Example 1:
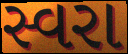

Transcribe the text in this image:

સ્વરા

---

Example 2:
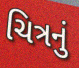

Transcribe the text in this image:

ચિત્રનું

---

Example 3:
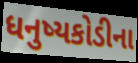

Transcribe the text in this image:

ધનુષ્યકોડીના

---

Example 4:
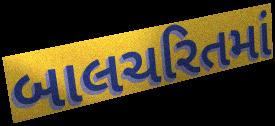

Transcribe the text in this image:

બાલચરિતમાં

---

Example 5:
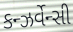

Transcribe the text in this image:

કન્ઝર્વેન્સી